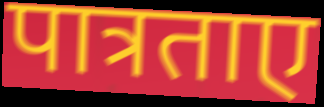
पात्रताए